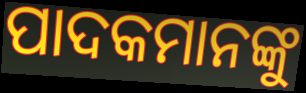
ପାଦକମାନଙ୍କୁ